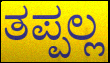
ತಪ್ಪಲ್ಲ